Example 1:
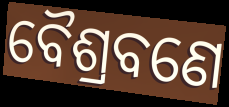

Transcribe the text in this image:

ବୈଶ୍ରବଣେ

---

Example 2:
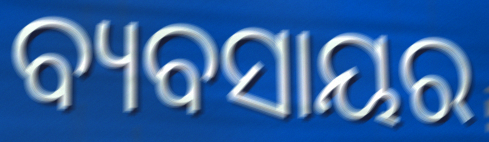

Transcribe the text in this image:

ବ୍ୟବସାୟର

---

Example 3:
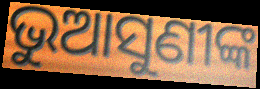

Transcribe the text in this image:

ଭୁଆସୁଣୀଙ୍କ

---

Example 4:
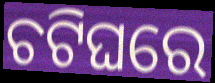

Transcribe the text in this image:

ଚଟିଘରେ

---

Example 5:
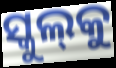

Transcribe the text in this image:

ସ୍କୁଲ୍‌କୁ